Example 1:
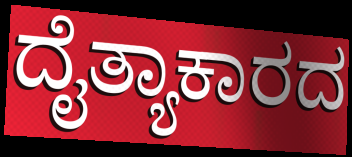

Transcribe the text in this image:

ದೈತ್ಯಾಕಾರದ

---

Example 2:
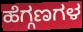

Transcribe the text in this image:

ಹೆಗ್ಗಣಗಳ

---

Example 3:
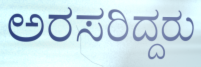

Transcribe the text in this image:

ಅರಸರಿದ್ದರು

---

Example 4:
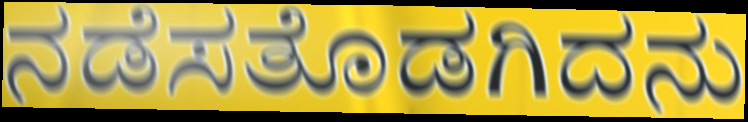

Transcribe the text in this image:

ನಡೆಸತೊಡಗಿದನು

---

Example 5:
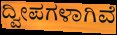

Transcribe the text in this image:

ದ್ವೀಪಗಳಾಗಿವೆ